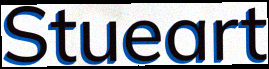
Stueart